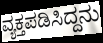
ವ್ಯಕ್ತಪಡಿಸಿದ್ದನು